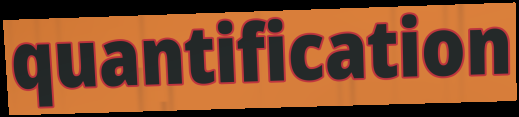
quantification